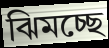
ঝিমচ্ছে